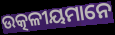
ଉତ୍କଳୀୟମାନେ